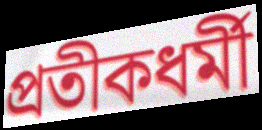
প্রতীকধর্মী